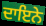
ਦਾਇਨੇ